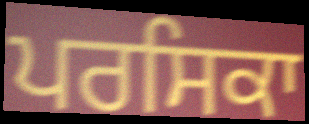
ਪਰਸਿਕਾ